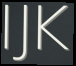
IJK